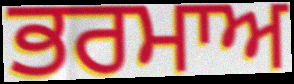
ਭਰਮਾਅ